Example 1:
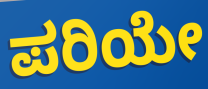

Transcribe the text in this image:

ಪರಿಯೇ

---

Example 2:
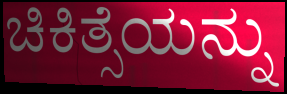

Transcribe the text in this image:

ಚಿಕಿತ್ಸೆಯನ್ನು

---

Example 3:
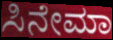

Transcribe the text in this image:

ಸಿನೇಮಾ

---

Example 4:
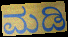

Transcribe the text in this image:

ಮಡಿ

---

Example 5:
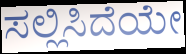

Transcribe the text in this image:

ಸಲ್ಲಿಸಿದೆಯೇ